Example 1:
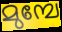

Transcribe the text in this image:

മുമ്പേ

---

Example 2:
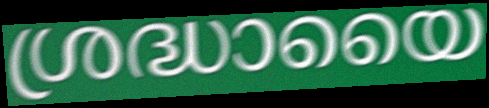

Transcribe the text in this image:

ശ്രദ്ധായൈ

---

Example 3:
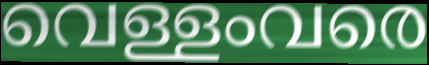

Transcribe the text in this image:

വെള്ളംവരെ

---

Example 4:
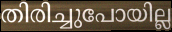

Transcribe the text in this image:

തിരിച്ചുപോയില്ല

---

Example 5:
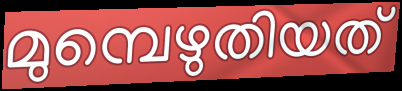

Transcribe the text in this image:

മുമ്പെഴുതിയത്